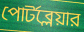
পোর্টব্লেয়ার